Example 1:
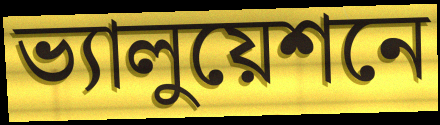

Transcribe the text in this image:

ভ্যালুয়েশনে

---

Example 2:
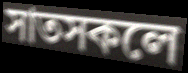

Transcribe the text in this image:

সাতসকলে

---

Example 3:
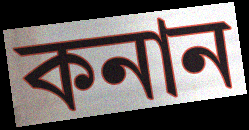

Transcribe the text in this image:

কনান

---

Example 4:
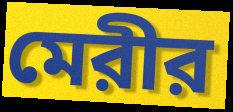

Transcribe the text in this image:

মেরীর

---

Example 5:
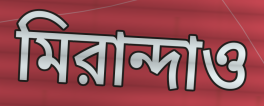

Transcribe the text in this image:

মিরান্দাও